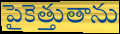
పైకెత్తుతాను